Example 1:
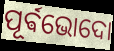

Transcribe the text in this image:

ପୂର୍ଵଭୋଦୋ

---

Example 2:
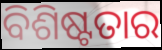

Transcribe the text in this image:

ବିଶିଷ୍ଟତାର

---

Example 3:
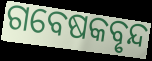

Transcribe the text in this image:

ଗବେଷକବୃନ୍ଦ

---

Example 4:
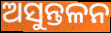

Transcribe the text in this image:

ଅସୁନ୍ତଳନ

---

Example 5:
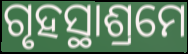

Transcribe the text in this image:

ଗୃହସ୍ଥାଶ୍ରମେ